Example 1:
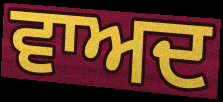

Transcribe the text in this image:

ਵਾਅਦ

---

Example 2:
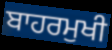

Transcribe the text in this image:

ਬਾਹਰਮੁਖੀ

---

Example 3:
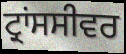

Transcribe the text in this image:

ਟ੍ਰਾਂਸਸੀਵਰ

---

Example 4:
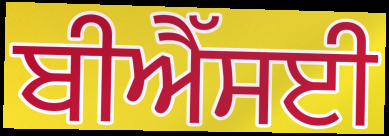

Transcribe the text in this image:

ਬੀਐੱਸਈ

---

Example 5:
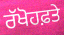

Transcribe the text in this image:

ਰੱਖੋਹਫ਼ਤੇ